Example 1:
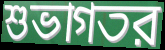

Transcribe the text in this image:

শুভাগতর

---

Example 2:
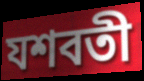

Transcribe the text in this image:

যশবতী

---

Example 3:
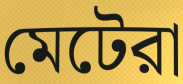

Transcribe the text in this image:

মেটেরা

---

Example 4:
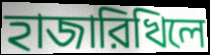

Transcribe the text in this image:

হাজারিখিলে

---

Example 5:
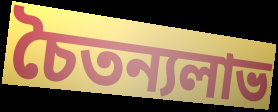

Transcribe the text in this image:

চৈতন্যলাভ